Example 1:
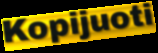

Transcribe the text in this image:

Kopijuoti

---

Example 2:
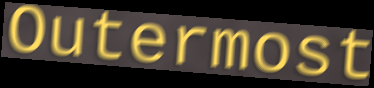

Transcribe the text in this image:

Outermost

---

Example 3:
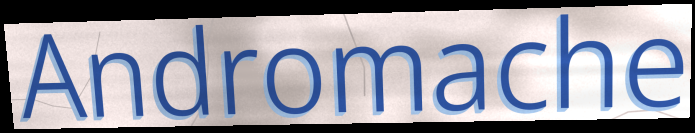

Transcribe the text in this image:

Andromache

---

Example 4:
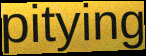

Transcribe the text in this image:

pitying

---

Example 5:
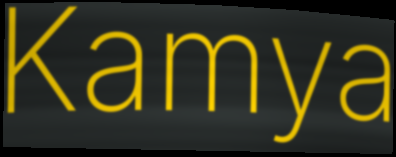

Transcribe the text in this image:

Kamya